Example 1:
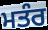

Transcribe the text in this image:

ਮਤੰਰ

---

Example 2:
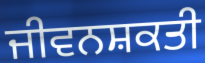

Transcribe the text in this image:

ਜੀਵਨਸ਼ਕਤੀ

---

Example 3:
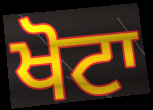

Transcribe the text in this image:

ਖੋਟਾ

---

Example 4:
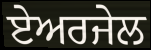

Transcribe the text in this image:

ਏਅਰਜੇਲ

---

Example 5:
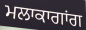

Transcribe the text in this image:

ਮਲਾਕਾਗਾਂਗ